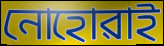
নোহোৱাই